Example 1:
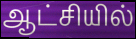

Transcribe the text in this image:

ஆட்சியில்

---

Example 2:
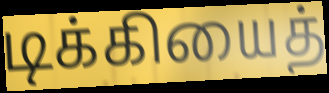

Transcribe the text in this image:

டிக்கியைத்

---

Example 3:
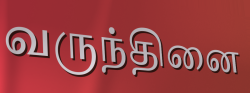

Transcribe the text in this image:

வருந்தினை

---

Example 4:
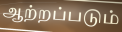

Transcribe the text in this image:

ஆற்றப்படும்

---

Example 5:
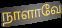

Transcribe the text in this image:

நாளாவே